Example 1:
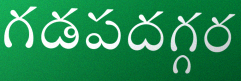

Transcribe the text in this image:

గడపదగ్గర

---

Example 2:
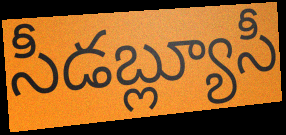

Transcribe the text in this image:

సీడబ్ల్యూసీ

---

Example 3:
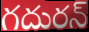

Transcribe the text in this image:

గదురన్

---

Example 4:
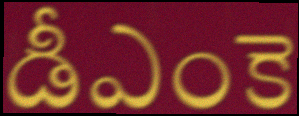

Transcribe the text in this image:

డీఎంకె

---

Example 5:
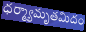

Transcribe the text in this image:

ధర్మ్యామృతమిదం